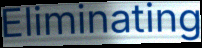
Eliminating